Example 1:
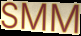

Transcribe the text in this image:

SMM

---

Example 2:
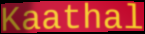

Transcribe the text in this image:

Kaathal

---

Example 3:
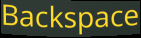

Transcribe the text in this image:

Backspace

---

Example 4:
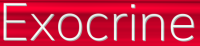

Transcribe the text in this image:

Exocrine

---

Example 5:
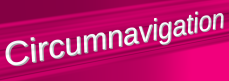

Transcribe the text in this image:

Circumnavigation